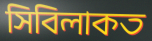
সিবিলাকত